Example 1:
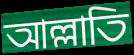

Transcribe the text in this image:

আল্লাতি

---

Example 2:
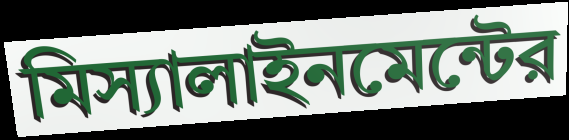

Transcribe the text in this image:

মিস্যালাইনমেন্টের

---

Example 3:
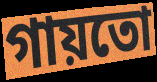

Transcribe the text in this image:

গায়তো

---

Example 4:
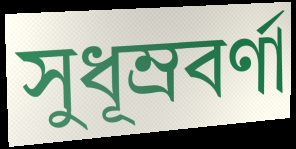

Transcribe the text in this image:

সুধূম্রবর্ণা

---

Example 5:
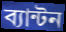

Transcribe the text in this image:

ব্যান্টন